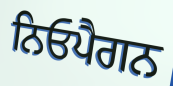
ਨਿਓਪੈਗਨ